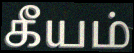
கீயம்